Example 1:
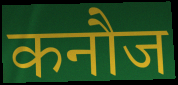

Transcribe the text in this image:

कनौज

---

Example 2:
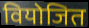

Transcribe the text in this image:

वियोजित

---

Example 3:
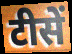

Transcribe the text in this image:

टीसें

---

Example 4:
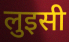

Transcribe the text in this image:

लुइसी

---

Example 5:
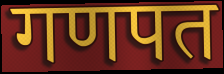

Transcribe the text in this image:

गणपत